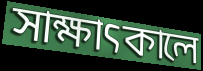
সাক্ষাৎকালে